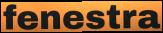
fenestra